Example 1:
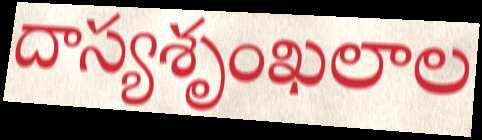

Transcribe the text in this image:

దాస్యశృంఖలాల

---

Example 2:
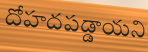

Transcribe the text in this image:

దోహదపడ్డాయని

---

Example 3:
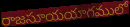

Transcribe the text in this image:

రాజసూయయాగములో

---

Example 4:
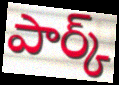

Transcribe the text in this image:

పార్క్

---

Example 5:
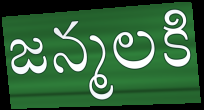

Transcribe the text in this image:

జన్మలకి